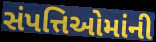
સંપત્તિઓમાંની